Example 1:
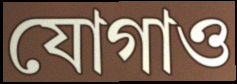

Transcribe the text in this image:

যোগাও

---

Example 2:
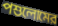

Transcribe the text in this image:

পশুলোমের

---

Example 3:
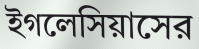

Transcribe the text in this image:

ইগলেসিয়াসের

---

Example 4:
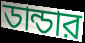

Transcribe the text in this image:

ডান্ডার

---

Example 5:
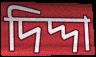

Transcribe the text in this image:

দিদ্দা